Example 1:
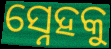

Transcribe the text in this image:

ସ୍ନେହକୁ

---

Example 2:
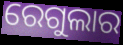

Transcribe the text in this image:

ରେଗୁଲାର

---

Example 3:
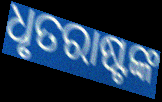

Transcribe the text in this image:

ଧୃତରାଷ୍ଟଙ୍କ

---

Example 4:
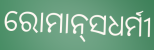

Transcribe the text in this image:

ରୋମାନ୍‌ସଧର୍ମୀ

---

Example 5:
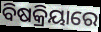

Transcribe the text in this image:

ବିଷକ୍ରିୟାରେ